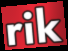
rik